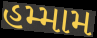
હમ્મામ